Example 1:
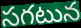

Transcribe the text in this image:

సగటున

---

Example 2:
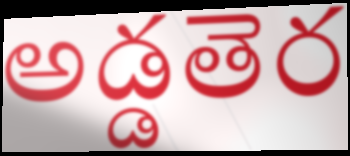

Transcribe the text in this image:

అడ్డతెర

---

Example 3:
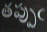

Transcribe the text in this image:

తప్పుఁ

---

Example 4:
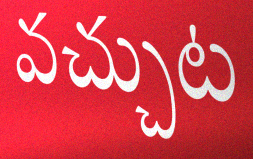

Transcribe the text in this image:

వచ్చుట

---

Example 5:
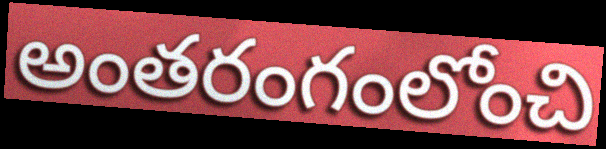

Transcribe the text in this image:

అంతరంగంలోంచి